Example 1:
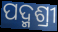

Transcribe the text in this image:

ପଦ୍ମଶ୍ରୀ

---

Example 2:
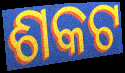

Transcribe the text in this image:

ଶକଟ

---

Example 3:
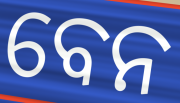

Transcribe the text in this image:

ବେନ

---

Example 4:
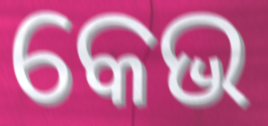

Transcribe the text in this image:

କେଭ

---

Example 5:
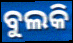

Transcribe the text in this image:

ବୁଲକି